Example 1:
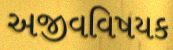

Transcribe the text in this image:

અજીવવિષયક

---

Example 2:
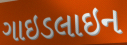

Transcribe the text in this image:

ગાઇડલાઇન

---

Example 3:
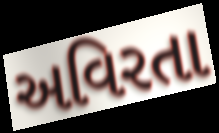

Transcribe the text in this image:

અવિરતા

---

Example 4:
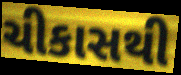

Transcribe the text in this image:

ચીકાસથી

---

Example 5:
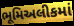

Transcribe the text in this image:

ભૂમિઅલીકમાં